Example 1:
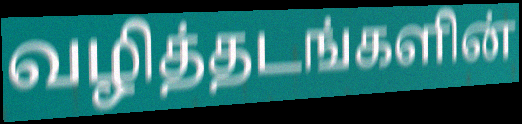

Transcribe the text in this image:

வழித்தடங்களின்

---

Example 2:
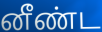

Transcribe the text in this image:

னீண்ட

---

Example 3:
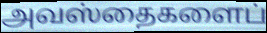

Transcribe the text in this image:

அவஸ்தைகளைப்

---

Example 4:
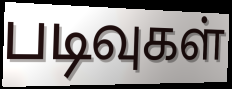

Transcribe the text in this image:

படிவுகள்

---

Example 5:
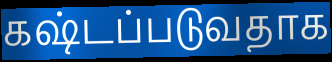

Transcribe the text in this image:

கஷ்டப்படுவதாக